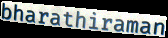
bharathiraman